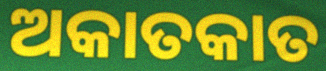
ଅକାତକାତ